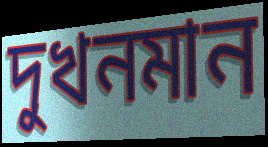
দুখনমান